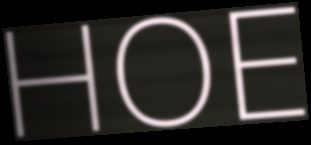
HOE